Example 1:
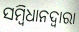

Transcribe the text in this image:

ସମ୍ବିଧାନଦ୍ବାରା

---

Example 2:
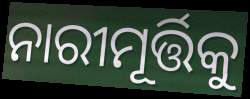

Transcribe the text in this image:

ନାରୀମୂର୍ତ୍ତିକୁ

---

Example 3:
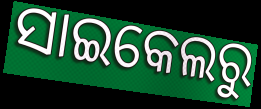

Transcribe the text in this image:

ସାଇକେଲରୁ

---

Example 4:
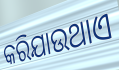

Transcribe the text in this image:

କରିଯାଉଥାଏ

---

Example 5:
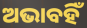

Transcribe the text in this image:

ଅଭାବହିଁ